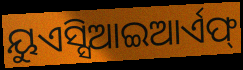
ୟୁଏସ୍ସିଆଇଆର୍ଏଫ୍